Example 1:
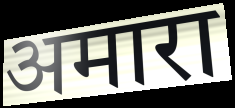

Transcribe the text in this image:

अमारा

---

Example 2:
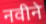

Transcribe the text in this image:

नवीने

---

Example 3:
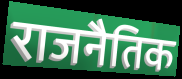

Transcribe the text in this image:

राजनैतिक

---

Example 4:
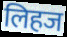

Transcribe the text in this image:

लिहज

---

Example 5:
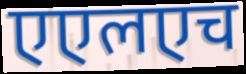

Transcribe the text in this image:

एएलएच